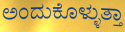
ಅಂದುಕೊಳ್ಳುತ್ತಾ